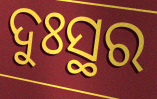
ଦୁଃସ୍ଥର